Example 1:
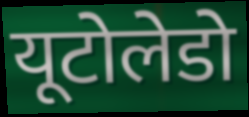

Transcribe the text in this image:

यूटोलेडो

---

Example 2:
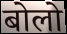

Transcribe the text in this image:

बोलो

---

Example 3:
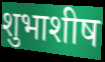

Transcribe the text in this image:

शुभाशीष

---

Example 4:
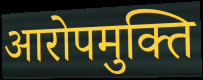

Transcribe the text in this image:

आरोपमुक्ति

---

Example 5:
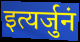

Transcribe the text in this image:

इत्यर्जुनं